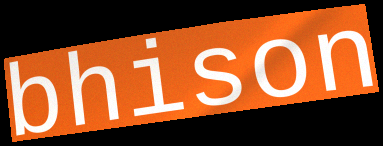
bhison